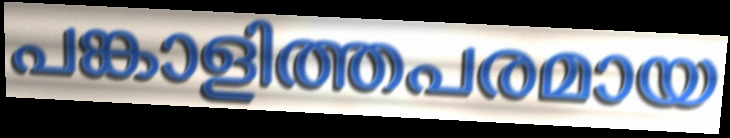
പങ്കാളിത്തപരമായ